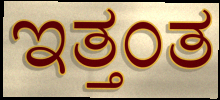
ಇತ್ತಂತ